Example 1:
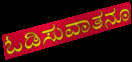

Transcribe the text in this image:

ಓಡಿಸುವಾತನೂ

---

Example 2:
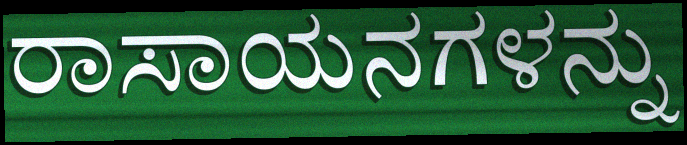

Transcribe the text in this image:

ರಾಸಾಯನಗಳನ್ನು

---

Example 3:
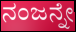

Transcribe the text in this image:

ನಂಜನ್ನೇ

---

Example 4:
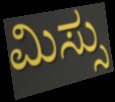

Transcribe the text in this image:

ಮಿಸ್ಸು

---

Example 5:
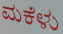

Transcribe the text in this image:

ಮಕೆಳು